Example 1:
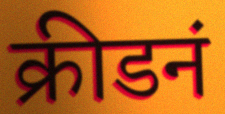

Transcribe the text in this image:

क्रीडनं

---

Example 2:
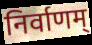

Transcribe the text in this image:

निर्वाणम्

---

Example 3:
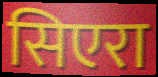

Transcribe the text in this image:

सिएरा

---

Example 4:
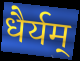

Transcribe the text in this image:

धैर्यम्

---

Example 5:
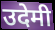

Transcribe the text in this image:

उदेमी